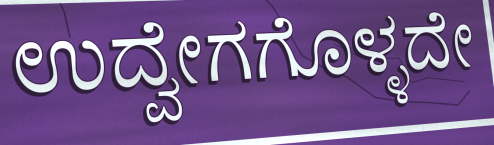
ಉದ್ವೇಗಗೊಳ್ಳದೇ